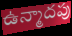
ఉన్మాదపు